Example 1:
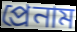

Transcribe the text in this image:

প্রেনাম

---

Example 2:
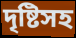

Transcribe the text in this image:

দৃষ্টিসহ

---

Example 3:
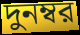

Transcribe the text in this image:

দুনম্বর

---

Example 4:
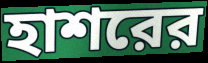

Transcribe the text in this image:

হাশরের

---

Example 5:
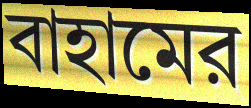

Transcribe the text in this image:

বাহামের